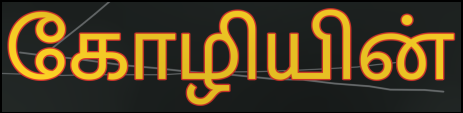
கோழியின்